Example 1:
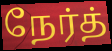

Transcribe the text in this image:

நேர்த்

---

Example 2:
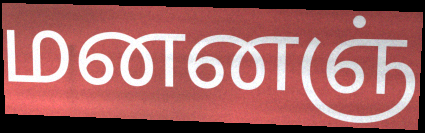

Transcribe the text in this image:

மனனஞ்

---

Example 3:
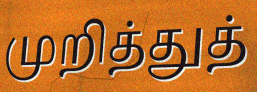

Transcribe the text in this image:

முறித்துத்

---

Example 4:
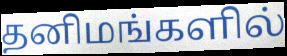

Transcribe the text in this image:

தனிமங்களில்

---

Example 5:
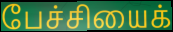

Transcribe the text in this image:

பேச்சியைக்